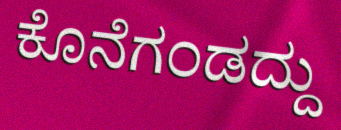
ಕೊನೆಗಂಡದ್ದು